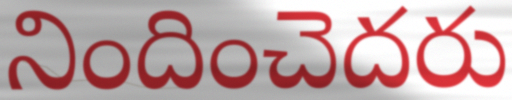
నిందించెదరు